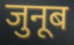
जुनूब